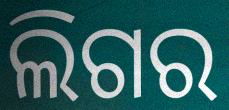
ଲିଗର